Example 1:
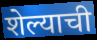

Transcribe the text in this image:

शेल्याची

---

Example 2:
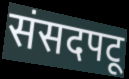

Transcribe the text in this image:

संसदपटू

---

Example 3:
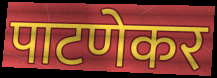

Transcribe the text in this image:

पाटणेकर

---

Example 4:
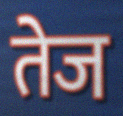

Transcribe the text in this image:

तेज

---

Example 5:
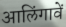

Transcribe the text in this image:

आलिंगावें